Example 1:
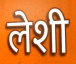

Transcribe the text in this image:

लेशी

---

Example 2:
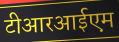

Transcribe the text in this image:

टीआरआईएम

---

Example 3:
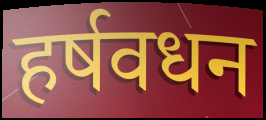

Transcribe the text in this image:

हर्षवधन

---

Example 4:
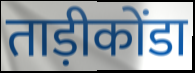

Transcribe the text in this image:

ताड़ीकोंडा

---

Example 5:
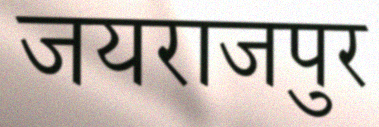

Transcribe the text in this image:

जयराजपुर